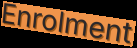
Enrolment